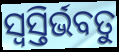
ସ୍ୱସ୍ତିର୍ଭବତୁ